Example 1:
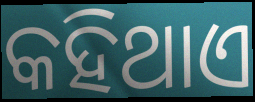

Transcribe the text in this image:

କହିଥାଏ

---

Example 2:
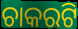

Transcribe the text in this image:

ଚାକରଟି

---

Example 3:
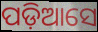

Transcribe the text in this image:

ପଡ଼ିଆସେ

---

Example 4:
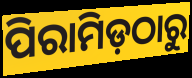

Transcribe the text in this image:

ପିରାମିଡ଼ଠାରୁ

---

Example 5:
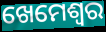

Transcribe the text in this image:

ଖେମେଶ୍ଵର